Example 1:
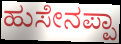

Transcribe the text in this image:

ಹುಸೇನಪ್ಪಾ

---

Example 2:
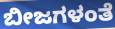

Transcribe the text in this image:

ಬೀಜಗಳಂತೆ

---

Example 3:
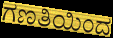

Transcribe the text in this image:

ಗಣತಿಯಿಂದ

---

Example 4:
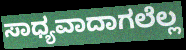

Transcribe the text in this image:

ಸಾಧ್ಯವಾದಾಗಲೆಲ್ಲ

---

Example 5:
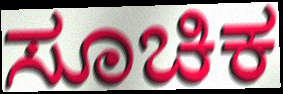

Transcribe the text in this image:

ಸೂಚಿಕ